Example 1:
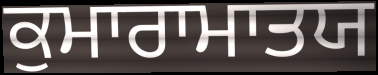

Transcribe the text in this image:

ਕੁਮਾਰਾਮਾਤਯ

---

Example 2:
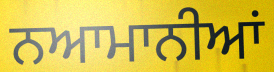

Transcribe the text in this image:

ਨਆਮਾਨੀਆਂ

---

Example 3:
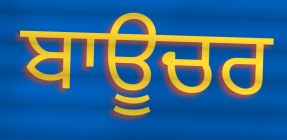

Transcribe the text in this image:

ਬਾਊਚਰ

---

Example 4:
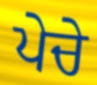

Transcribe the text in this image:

ਪੇਚੇ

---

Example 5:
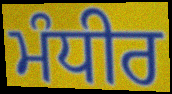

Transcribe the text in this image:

ਮੰਧੀਰ